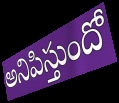
అనిపిస్తుందో